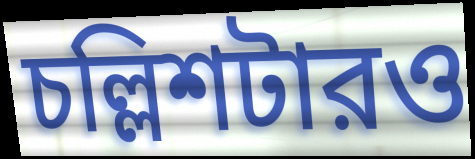
চল্লিশটারও